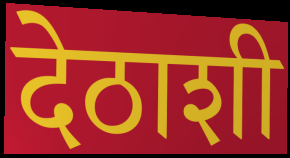
देठाशी